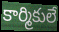
కార్మికులే